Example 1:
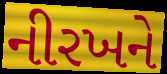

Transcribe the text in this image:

નીરખને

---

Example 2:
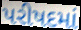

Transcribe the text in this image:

પરીષદમાં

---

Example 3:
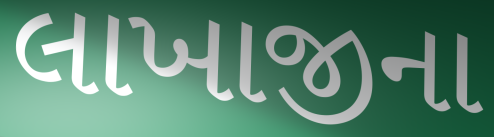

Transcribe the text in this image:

લાખાજીના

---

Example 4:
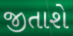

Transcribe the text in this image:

જીતાશે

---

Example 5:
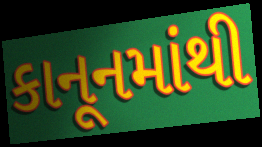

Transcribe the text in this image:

કાનૂનમાંથી